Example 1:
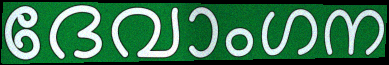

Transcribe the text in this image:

ദേവാംഗന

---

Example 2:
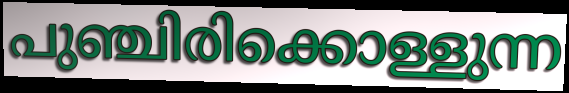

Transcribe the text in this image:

പുഞ്ചിരിക്കൊള്ളുന്ന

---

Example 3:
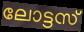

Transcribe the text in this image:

ലോട്ടസ്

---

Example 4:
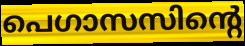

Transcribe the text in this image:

പെഗാസസിന്റെ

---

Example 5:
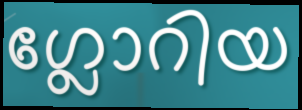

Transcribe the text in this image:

ഗ്ലോറിയ